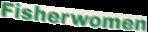
Fisherwomen